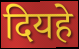
दियहे